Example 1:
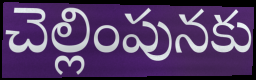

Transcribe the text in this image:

చెల్లింపునకు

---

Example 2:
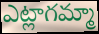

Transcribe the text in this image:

ఎట్లాగమ్మా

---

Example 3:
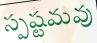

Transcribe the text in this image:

స్పష్టమవు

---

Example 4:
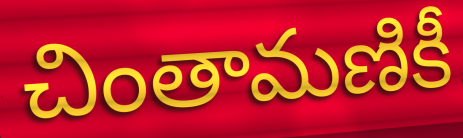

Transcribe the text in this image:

చింతామణికీ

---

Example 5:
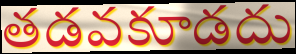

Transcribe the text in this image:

తడవకూడదు